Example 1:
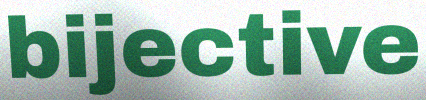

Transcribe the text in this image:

bijective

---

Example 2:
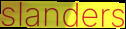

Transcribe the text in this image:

slanders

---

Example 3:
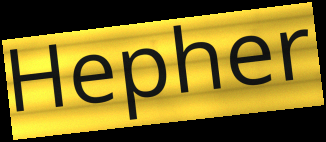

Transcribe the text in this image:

Hepher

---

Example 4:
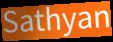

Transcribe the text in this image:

Sathyan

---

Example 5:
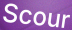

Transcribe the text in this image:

Scour